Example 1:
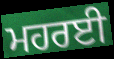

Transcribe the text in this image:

ਮਹਰਈ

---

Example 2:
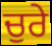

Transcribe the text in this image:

ਚੁਰੇ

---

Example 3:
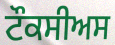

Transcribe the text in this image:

ਟੌਕਸੀਅਸ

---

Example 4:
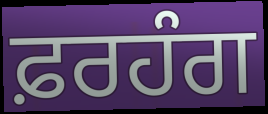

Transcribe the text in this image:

ਫ਼ਰਹੰਗ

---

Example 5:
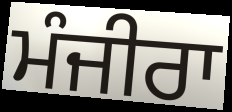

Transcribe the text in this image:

ਮੰਜੀਰਾ